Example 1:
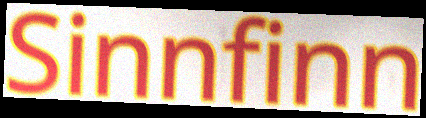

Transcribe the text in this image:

Sinnfinn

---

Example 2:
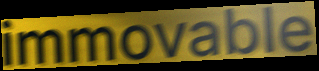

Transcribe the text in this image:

immovable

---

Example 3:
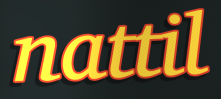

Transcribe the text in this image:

nattil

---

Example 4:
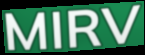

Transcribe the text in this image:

MIRV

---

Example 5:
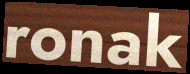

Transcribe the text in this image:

ronak